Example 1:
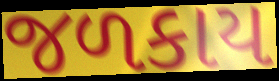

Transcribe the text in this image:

જળકાય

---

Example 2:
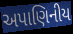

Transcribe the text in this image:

અપાણિનીય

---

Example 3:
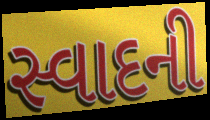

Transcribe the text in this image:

સ્વાદની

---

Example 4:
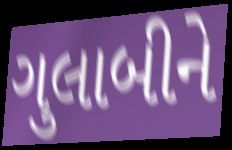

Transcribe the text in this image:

ગુલાબીને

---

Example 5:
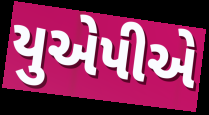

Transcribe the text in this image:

યુએપીએ